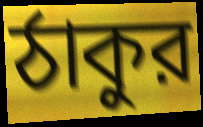
ঠাকুর